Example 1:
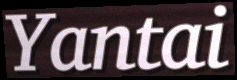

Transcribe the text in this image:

Yantai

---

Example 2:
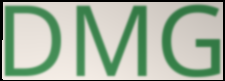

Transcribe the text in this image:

DMG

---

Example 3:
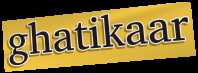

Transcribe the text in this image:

ghatikaar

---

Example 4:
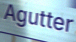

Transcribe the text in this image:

Agutter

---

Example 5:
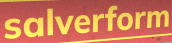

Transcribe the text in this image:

salverform